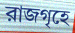
রাজগৃহে